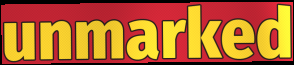
unmarked